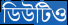
ডিউটিও